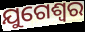
ଯୁଗେଶ୍ଵର